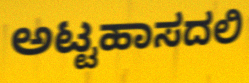
ಅಟ್ಟಹಾಸದಲಿ